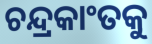
ଚନ୍ଦ୍ରକାଂତକୁ